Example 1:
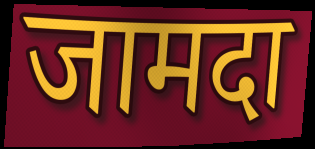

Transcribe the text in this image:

जामदा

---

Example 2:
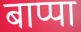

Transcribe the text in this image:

बाप्पा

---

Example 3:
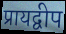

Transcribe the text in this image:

प्रायद्वीप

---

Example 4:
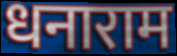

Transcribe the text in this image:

धनाराम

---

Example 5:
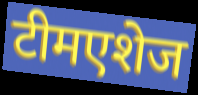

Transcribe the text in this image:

टीमएशेज